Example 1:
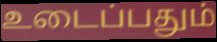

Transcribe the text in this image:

உடைப்பதும்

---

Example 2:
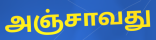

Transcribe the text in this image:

அஞ்சாவது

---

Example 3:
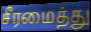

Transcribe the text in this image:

சீரமைத்து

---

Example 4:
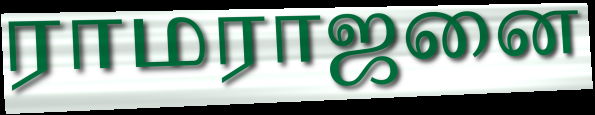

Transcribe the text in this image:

ராமராஜனை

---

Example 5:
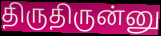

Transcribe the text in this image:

திருதிருன்னு